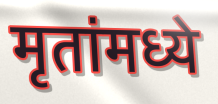
मृतांमध्ये